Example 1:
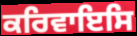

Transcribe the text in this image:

ਕਰਿਵਾਇਸਿ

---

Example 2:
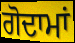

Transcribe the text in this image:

ਗੋਦਾਮਾਂ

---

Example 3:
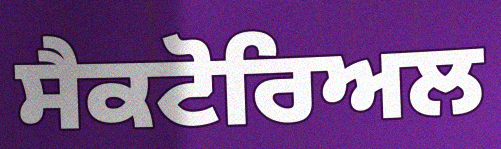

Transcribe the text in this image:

ਸੈਕਟੋਰਿਅਲ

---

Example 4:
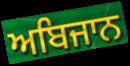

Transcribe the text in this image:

ਅਬਿਜਾਨ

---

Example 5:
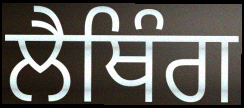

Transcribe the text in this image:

ਲੈਥਿੰਗ